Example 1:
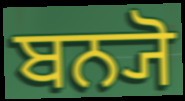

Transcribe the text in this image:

ਬਨ੍ਯੋ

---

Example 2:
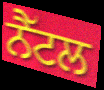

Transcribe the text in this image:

ਨੈੱਟਲ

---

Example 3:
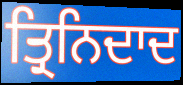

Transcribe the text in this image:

ਤ੍ਰਿਨਿਦਾਦ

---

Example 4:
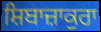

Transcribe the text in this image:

ਸ਼ਿਬਾਜ਼ਾਕੁਰਾ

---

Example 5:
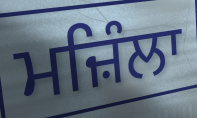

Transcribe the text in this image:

ਮਜ਼ਿੰਲਾ